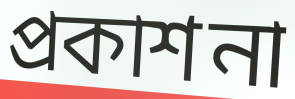
প্রকাশনা